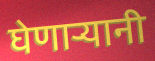
घेणाऱ्यानी